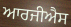
ਆਰਜੀਐਸ